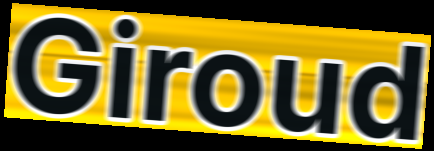
Giroud